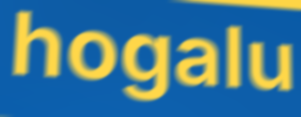
hogalu